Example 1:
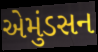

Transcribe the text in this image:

એમુંડસન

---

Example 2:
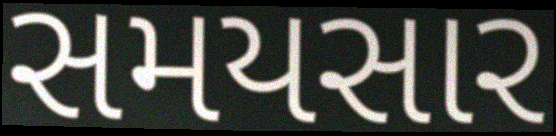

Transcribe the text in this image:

સમયસાર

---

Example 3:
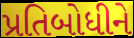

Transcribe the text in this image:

પ્રતિબોધીને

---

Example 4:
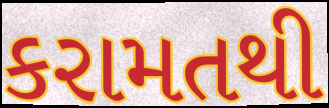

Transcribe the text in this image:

કરામતથી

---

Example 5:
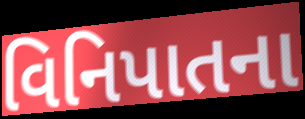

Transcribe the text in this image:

વિનિપાતના